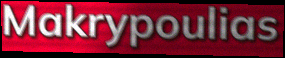
Makrypoulias